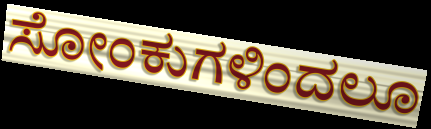
ಸೋಂಕುಗಳಿಂದಲೂ